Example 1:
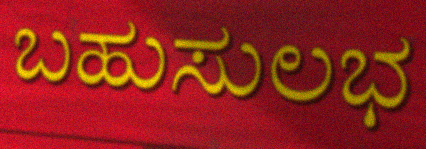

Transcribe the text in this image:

ಬಹುಸುಲಭ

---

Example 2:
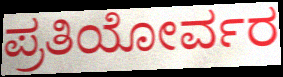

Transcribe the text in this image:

ಪ್ರತಿಯೋರ್ವರ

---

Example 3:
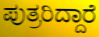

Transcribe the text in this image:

ಪುತ್ರರಿದ್ದಾರೆ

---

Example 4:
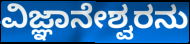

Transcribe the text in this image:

ವಿಜ್ಞಾನೇಶ್ವರನು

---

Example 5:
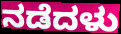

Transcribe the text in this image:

ನಡೆದಳು